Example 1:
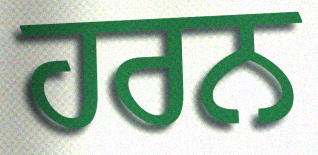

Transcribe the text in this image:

ਹਰਨ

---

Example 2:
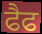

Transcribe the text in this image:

ਫੈਫ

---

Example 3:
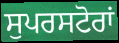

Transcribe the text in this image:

ਸੁਪਰਸਟੋਰਾਂ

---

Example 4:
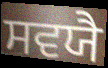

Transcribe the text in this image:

ਸਵਯੈ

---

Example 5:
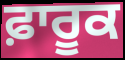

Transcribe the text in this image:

ਫ਼ਾਰੂਕ